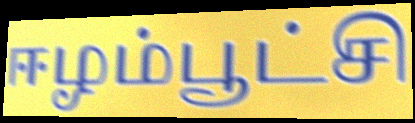
ஈழம்பூட்சி